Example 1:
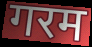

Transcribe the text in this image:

गरम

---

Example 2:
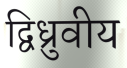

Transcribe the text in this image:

द्विध्रुवीय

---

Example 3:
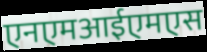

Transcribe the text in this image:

एनएमआईएमएस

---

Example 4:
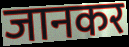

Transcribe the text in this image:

जानकर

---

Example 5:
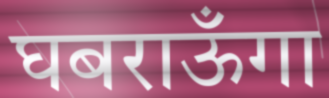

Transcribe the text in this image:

घबराऊँगा